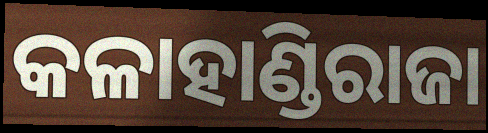
କଳାହାଣ୍ଡିରାଜା